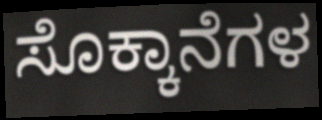
ಸೊಕ್ಕಾನೆಗಳ